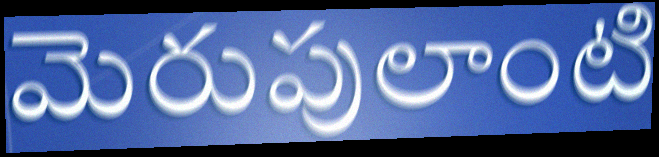
మెరుపులాంటి